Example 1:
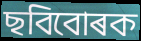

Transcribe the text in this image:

ছবিবোৰক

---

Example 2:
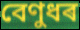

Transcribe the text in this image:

বেণুধৰ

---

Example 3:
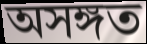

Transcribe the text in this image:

অসঙ্গত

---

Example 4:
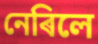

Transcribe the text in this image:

নেৰিলে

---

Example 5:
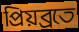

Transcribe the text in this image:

প্ৰিয়ব্ৰতে